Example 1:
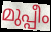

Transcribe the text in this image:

മുപ്പീം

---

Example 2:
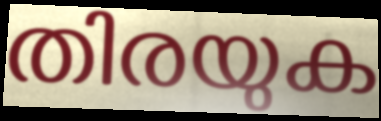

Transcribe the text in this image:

തിരയുക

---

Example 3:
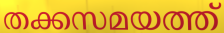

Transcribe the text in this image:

തക്കസമയത്ത്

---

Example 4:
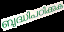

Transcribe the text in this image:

ബുദ്ധിപഠിക്കുക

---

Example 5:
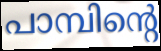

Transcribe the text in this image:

പാമ്പിന്റെ